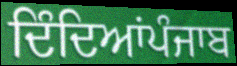
ਦਿੰਦਿਆਂਪੰਜਾਬ